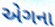
એગના